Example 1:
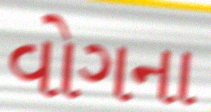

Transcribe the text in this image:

વોગના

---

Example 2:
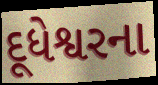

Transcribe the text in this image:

દૂધેશ્વરના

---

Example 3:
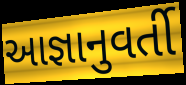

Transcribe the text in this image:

આજ્ઞાનુવર્તી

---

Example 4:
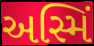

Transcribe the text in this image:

અસ્મિં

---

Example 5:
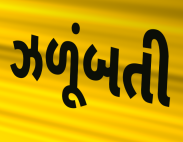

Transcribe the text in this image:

ઝળૂંબતી